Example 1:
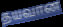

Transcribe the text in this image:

தயவான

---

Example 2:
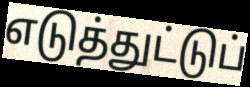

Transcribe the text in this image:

எடுத்துட்டுப்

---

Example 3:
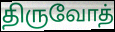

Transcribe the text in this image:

திருவோத்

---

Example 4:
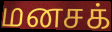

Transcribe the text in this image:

மனசக்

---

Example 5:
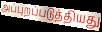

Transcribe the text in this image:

அப்புறப்படுத்தியது